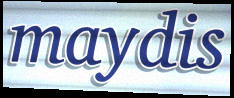
maydis